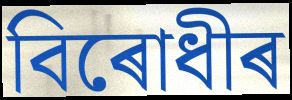
বিৰোধীৰ